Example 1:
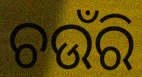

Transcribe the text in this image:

ଚଉଁରି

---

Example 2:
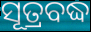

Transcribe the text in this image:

ସୂତ୍ରବଦ୍ଧ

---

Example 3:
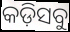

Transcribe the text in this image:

କଡ଼ିସବୁ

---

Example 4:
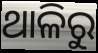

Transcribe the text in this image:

ଥାଳିରୁ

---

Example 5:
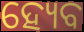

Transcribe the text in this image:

ହ୍ୟେବ